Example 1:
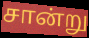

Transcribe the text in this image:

சான்று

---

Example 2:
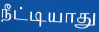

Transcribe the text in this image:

நீட்டியாது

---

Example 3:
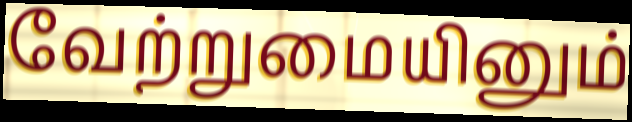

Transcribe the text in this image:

வேற்றுமையினும்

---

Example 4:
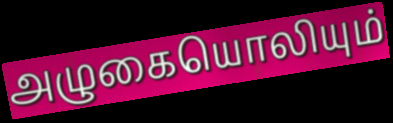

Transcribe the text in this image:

அழுகையொலியும்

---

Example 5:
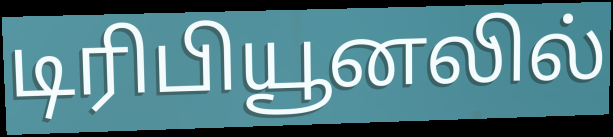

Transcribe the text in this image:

டிரிபியூனலில்